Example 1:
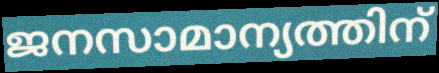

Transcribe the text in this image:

ജനസാമാന്യത്തിന്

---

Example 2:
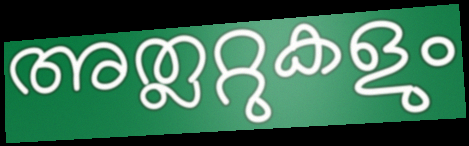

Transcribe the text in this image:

അത്ലറ്റുകളും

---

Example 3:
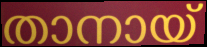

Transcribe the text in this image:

താനായ്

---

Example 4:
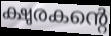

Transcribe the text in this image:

ക്ഷുരകന്റെ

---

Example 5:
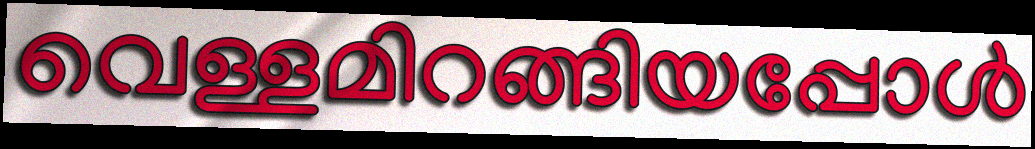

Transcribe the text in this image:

വെള്ളമിറങ്ങിയപ്പോൾ